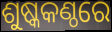
ଶୁଷ୍କକଣ୍ଠରେ